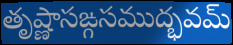
తృష్ణాసఙ్గసముద్భవమ్